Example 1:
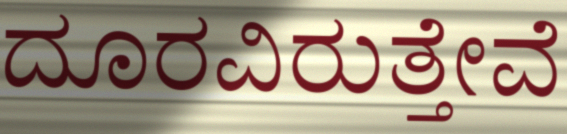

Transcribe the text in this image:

ದೂರವಿರುತ್ತೇವೆ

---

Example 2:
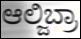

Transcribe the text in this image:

ಆಲ್ಜಿಬ್ರಾ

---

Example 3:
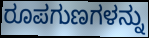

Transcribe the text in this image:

ರೂಪಗುಣಗಳನ್ನು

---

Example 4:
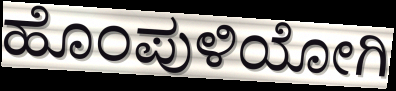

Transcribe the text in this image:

ಹೊಂಪುಳಿಯೋಗಿ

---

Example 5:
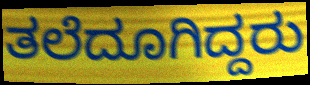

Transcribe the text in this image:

ತಲೆದೂಗಿದ್ದರು